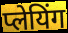
प्लेयिंग